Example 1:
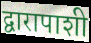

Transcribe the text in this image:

द्वारापाशी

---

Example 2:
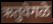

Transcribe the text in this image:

ऋतुवेगळे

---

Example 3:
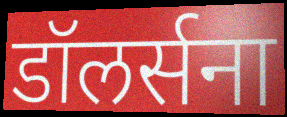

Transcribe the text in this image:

डॉलर्सना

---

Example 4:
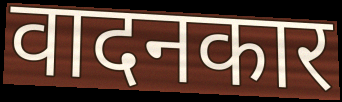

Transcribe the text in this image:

वादनकार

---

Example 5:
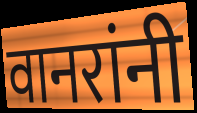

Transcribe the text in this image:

वानरांनी